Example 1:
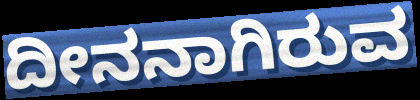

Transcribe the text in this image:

ದೀನನಾಗಿರುವ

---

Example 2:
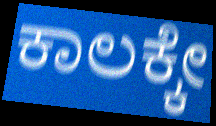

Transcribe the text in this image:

ಕಾಲಕ್ಕೇ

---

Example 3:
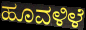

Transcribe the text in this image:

ಹೂವಳಿಳೆ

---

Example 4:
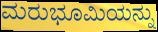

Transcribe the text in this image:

ಮರುಭೂಮಿಯನ್ನು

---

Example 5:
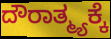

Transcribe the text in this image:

ದೌರಾತ್ಮ್ಯಕ್ಕೆ